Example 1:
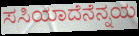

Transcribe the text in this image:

ಸಸಿಯಾದೆನೆನ್ನಯ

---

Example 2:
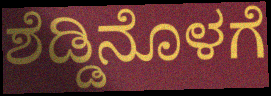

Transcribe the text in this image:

ಶೆಡ್ಡಿನೊಳಗೆ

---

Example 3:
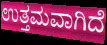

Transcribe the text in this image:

ಉತ್ತಮವಾಗಿದೆ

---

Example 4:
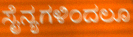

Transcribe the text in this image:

ಸೈನ್ಯಗಳಿಂದಲೂ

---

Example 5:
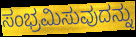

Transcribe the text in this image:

ಸಂಭ್ರಮಿಸುವುದನ್ನು